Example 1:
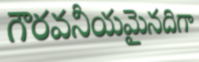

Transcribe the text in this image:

గౌరవనీయమైనదిగా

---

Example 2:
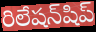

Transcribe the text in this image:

రిలేషన్‌షిప్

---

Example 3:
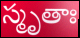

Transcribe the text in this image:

స్మృతాః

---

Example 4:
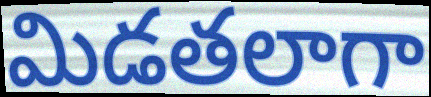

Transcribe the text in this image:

మిడతలాగా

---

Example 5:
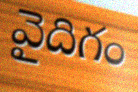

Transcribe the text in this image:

వైదిగం